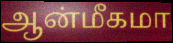
ஆன்மீகமா